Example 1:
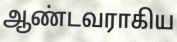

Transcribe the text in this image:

ஆண்டவராகிய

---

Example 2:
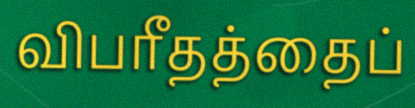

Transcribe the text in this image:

விபரீதத்தைப்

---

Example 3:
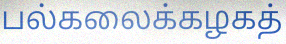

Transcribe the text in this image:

பல்கலைக்கழகத்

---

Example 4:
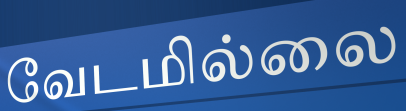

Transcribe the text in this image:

வேடமில்லை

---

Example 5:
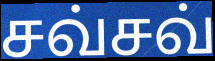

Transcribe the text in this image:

சவ்சவ்